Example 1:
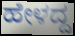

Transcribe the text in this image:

ಹೇಳದ್ದ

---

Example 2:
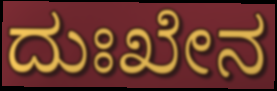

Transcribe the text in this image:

ದುಃಖೇನ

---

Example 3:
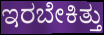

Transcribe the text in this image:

ಇರಬೇಕಿತ್ತು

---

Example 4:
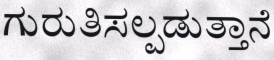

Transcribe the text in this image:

ಗುರುತಿಸಲ್ಪಡುತ್ತಾನೆ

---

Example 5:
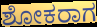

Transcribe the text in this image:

ಶೋಕರಾಗ